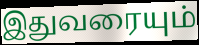
இதுவரையும்